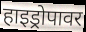
हाइड्रोपावर